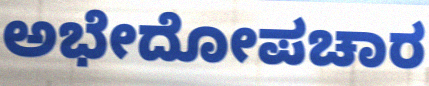
ಅಭೇದೋಪಚಾರ